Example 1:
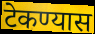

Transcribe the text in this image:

टेकण्यास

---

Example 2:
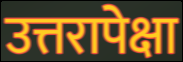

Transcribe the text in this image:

उत्तरापेक्षा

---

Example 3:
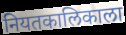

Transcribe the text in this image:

नियतकालिकाला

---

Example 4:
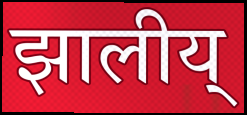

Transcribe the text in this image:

झालीय्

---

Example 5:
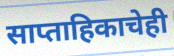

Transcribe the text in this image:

साप्ताहिकाचेही